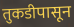
तुकडीपासून